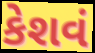
કેશવં